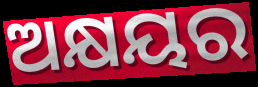
ଅକ୍ଷୟର